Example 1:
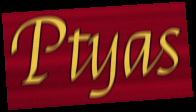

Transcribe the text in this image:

Ptyas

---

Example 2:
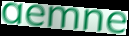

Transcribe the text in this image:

aemne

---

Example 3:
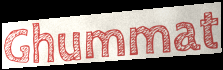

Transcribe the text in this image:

Ghummat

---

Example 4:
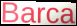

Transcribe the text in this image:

Barca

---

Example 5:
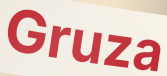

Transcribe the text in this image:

Gruza